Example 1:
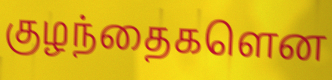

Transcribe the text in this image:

குழந்தைகளென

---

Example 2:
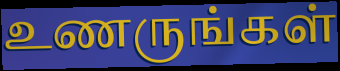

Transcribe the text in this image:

உணருங்கள்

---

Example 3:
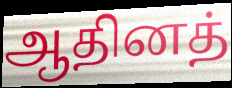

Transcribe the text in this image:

ஆதினத்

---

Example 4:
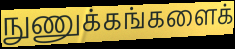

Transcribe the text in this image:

நுணுக்கங்களைக்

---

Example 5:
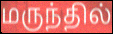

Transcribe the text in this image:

மருந்தில்